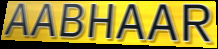
AABHAAR